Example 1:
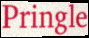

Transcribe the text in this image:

Pringle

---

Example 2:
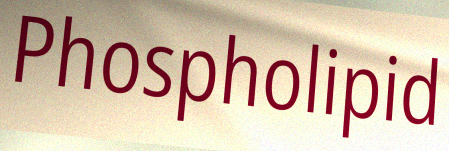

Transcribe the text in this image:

Phospholipid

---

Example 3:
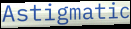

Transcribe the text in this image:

Astigmatic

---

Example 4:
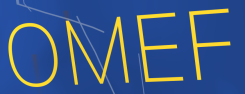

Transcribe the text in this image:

OMEF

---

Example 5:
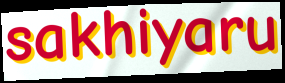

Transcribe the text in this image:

sakhiyaru